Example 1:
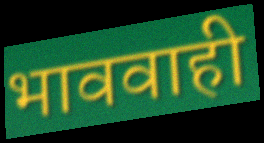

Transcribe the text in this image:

भाववाही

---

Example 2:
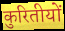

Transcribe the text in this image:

कुरितीयों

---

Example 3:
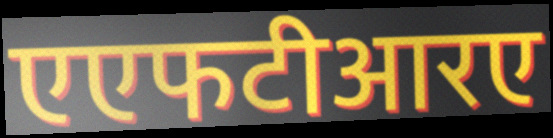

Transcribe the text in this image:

एएफटीआरए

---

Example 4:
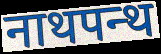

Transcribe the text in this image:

नाथपन्थ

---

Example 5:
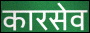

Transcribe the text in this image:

कारसेव